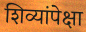
शिव्यांपेक्षा